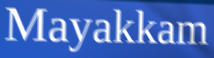
Mayakkam